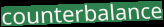
counterbalance